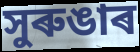
সুৰুঙাৰ